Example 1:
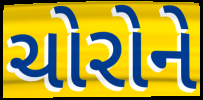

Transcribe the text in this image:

ચોરોને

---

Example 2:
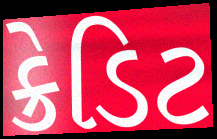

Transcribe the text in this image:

ક્રેડિટ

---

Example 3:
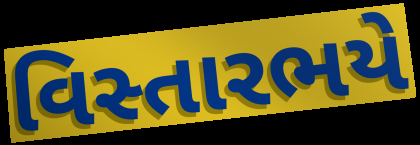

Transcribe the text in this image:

વિસ્તારભયે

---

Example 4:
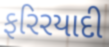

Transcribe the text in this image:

ફરિરયાદી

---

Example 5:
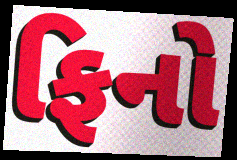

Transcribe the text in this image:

ફિનો